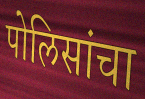
पोलिसांचा